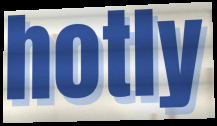
hotly